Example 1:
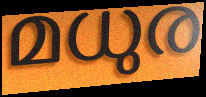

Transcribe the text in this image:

മധുര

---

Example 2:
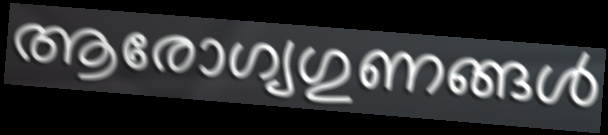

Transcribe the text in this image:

ആരോഗ്യഗുണങ്ങൾ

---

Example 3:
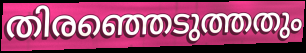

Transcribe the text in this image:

തിരഞ്ഞെടുത്തതും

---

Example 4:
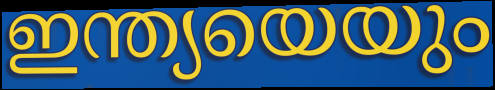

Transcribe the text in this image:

ഇന്ത്യയെയും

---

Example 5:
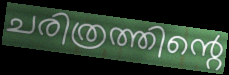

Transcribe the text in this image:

ചരിത്രത്തിന്റെ